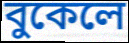
বুকেলে